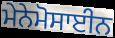
ਮੇਨੇਮੋਸਾਈਨ